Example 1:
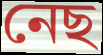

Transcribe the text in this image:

নেছ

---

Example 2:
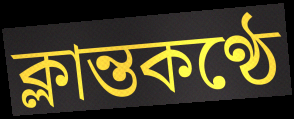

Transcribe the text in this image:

ক্লান্তকণ্ঠে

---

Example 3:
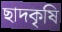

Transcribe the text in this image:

ছাদকৃষি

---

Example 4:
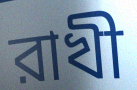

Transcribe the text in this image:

রাখী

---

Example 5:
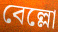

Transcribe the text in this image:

বেল্লো